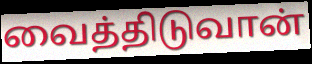
வைத்திடுவான்